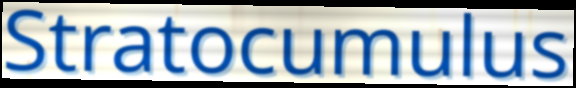
Stratocumulus